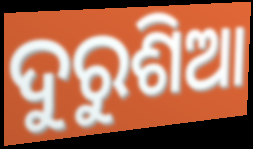
ଦୁରୁଶିଆ